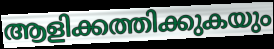
ആളിക്കത്തിക്കുകയും